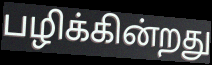
பழிக்கின்றது